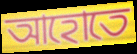
আহোতে